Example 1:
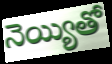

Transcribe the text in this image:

నెయ్యితో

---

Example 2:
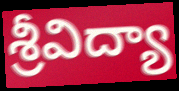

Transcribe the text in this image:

శ్రీవిద్యా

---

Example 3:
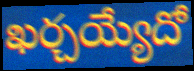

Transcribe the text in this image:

ఖర్చయ్యేదో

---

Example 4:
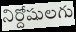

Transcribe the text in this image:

నిర్దోషులగు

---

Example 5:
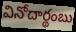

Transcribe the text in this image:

వినోదార్థంబు